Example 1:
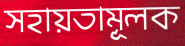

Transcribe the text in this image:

সহায়তামূলক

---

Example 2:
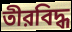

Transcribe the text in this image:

তীরবিদ্ধ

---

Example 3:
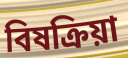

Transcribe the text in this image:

বিষক্রিয়া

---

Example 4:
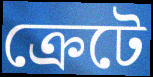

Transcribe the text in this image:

ক্রেটে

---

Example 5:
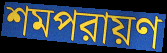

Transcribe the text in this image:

শমপরায়ণ